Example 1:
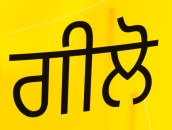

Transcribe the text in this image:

ਗੀਲੋ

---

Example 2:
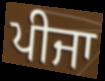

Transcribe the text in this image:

ਪੀਜਾ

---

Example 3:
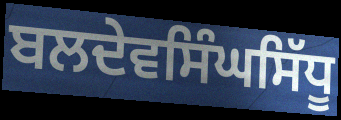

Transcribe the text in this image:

ਬਲਦੇਵਸਿੰਘਸਿੱਧੂ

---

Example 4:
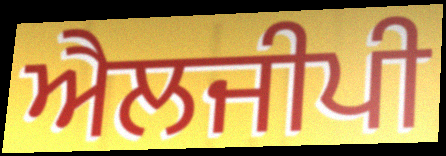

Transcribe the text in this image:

ਐਲਜੀਪੀ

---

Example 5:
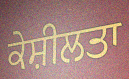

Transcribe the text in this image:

ਕੇਸ਼ੀਲਤਾ